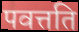
पवत्तति